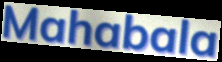
Mahabala